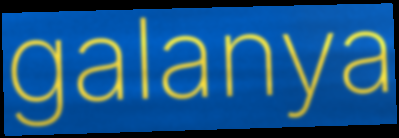
galanya